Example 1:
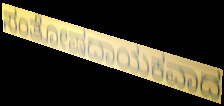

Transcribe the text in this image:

ಸಂತೋಷದಾಯಕವಾದ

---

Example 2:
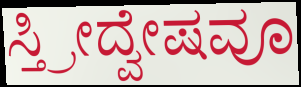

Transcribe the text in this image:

ಸ್ತ್ರೀದ್ವೇಷವೂ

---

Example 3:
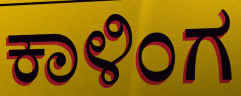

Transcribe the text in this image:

ಕಾಳಿಂಗ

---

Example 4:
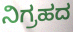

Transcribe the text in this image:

ನಿಗ್ರಹದ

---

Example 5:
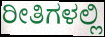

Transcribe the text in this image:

ರೀತಿಗಳಲ್ಲಿ